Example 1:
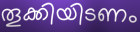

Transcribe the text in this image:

തൂക്കിയിടണം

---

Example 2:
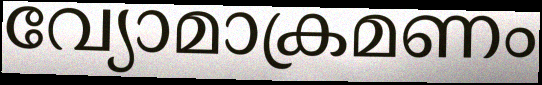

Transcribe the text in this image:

വ്യോമാക്രമണം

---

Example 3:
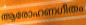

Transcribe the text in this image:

ആരോഹണഗീതം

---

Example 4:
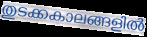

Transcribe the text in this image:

തുടക്കകാലങ്ങളിൽ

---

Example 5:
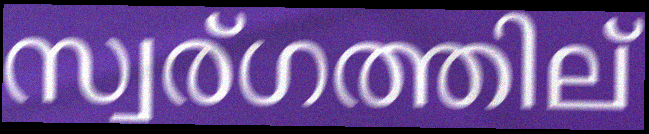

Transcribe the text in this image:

സ്വര്ഗത്തില്